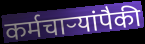
कर्मचाऱ्यांपैकी